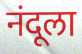
नंदूला